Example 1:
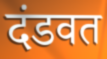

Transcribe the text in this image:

दंडवत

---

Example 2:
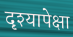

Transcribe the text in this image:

दृश्यापेक्षा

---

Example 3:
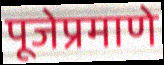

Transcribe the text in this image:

पूजेप्रमाणे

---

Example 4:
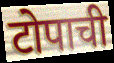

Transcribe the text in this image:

टोपाची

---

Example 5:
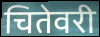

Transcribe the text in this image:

चितेवरी